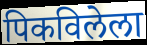
पिकविलेला